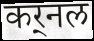
कर्नल